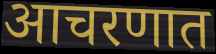
आचरणात